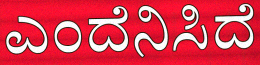
ಎಂದೆನಿಸಿದೆ